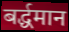
बर्द्धमान